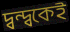
দ্বন্দ্বকেই